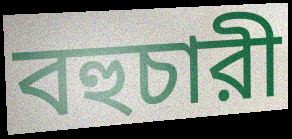
বহুচারী